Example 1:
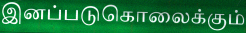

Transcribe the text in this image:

இனப்படுகொலைக்கும்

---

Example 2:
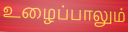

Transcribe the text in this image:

உழைப்பாலும்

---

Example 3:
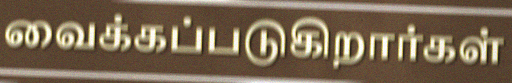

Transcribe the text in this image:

வைக்கப்படுகிறார்கள்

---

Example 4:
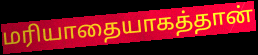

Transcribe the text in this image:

மரியாதையாகத்தான்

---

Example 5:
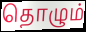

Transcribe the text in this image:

தொழும்